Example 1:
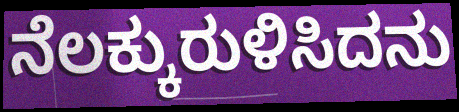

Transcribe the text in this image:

ನೆಲಕ್ಕುರುಳಿಸಿದನು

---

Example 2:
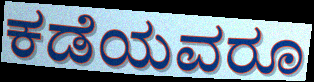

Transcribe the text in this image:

ಕಡೆಯವರೂ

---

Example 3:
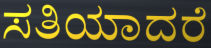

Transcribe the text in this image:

ಸತಿಯಾದರೆ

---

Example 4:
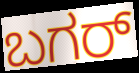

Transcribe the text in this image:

ಬಗರ್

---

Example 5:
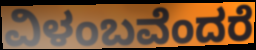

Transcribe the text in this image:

ವಿಳಂಬವೆಂದರೆ